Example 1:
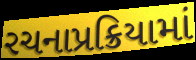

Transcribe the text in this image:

રચનાપ્રક્રિયામાં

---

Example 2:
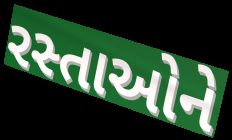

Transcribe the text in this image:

રસ્તાઓને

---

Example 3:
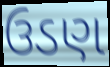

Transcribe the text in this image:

ઉડણ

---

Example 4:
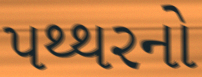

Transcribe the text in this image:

પથ્થરનો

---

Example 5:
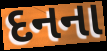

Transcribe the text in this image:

દનના